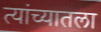
त्यांच्यातला